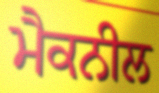
ਮੈਕਨੀਲ